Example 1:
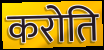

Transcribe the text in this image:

करोति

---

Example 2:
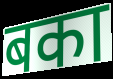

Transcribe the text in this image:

बका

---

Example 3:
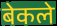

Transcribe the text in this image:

बेकले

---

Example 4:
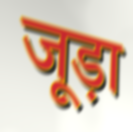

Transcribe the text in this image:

जूड़ा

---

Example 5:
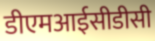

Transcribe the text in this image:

डीएमआईसीडीसी